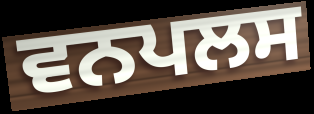
ਵਨਪਲਸ